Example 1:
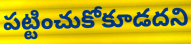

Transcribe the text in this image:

పట్టించుకోకూడదని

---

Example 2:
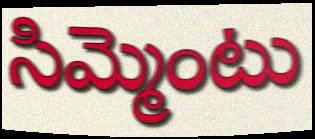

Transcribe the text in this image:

సిమ్మెంటు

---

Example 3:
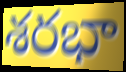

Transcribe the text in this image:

శరభా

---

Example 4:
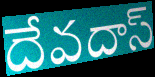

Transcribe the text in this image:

దేవదాస్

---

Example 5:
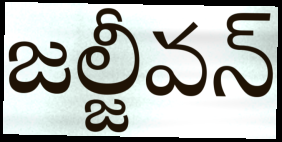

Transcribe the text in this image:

జల్జీవన్